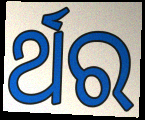
ର୍ଥର